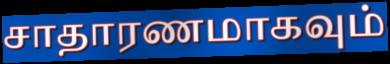
சாதாரணமாகவும்